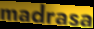
madrasa